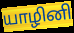
யாழினி